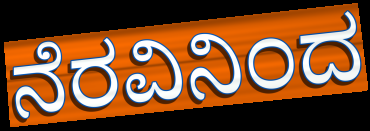
ನೆರವಿನಿಂದ